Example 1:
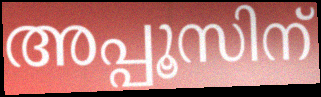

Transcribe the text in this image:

അപ്പൂസിന്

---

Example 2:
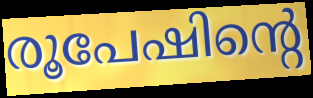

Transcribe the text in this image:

രൂപേഷിന്റെ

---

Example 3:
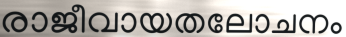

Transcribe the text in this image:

രാജീവായതലോചനം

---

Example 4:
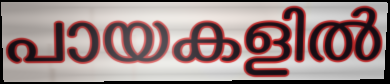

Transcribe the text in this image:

പായകളിൽ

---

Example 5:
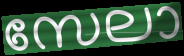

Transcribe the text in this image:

സേലാ